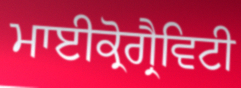
ਮਾਈਕ੍ਰੋਗ੍ਰੈਵਿਟੀ